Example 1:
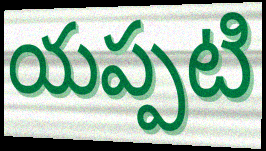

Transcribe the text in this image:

యప్పటి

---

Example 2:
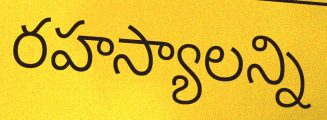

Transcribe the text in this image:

రహస్యాలన్ని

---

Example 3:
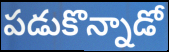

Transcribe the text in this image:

పడుకొన్నాడో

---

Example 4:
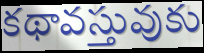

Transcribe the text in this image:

కథావస్తువుకు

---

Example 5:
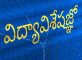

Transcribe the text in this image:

విద్యావిశేషజ్ఞో